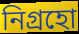
নিগ্রহো